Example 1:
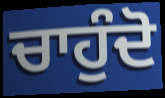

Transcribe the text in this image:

ਚਾਹੁੰਦੋ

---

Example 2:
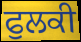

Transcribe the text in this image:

ਫੁਲਕੀ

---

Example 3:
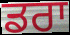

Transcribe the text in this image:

ਡਰਾ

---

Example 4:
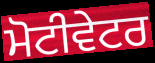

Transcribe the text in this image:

ਮੋਟੀਵੇਟਰ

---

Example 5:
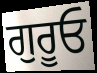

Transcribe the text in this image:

ਗੁਰੂਓ